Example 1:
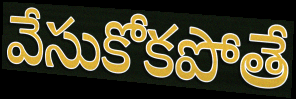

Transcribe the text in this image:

వేసుకోకపోతే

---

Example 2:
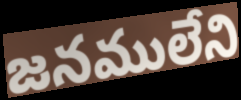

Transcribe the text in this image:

జనములేని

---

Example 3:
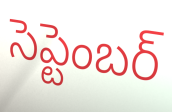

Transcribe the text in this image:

సెప్టెంబర్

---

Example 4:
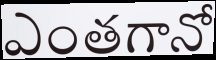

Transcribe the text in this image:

ఎంతగానో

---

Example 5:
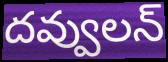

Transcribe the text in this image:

దవ్వులన్